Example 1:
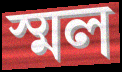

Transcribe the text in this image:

স্মল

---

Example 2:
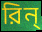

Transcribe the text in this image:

রিন্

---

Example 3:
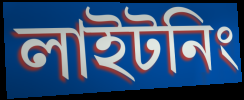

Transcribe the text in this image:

লাইটনিং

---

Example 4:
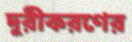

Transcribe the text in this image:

দূরীকরণের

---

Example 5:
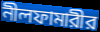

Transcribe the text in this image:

নীলফামারীর